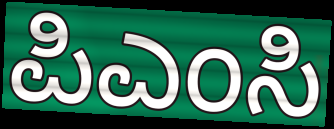
ಪಿಎಂಸಿ